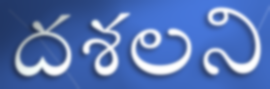
దశలని